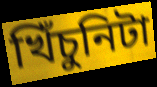
খিঁচুনিটা